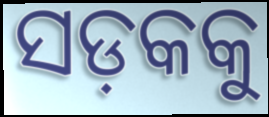
ସଡ଼କକୁ